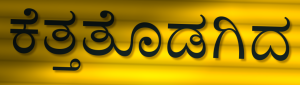
ಕೆತ್ತತೊಡಗಿದ